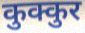
कुक्कुर